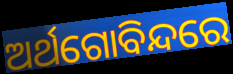
ଅର୍ଥଗୋବିନ୍ଦରେ